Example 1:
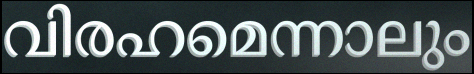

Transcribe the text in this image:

വിരഹമെന്നാലും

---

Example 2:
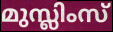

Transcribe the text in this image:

മുസ്ലിംസ്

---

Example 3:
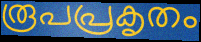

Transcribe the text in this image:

രൂപപ്രകൃതം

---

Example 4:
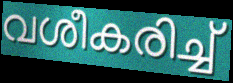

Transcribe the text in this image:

വശീകരിച്ച്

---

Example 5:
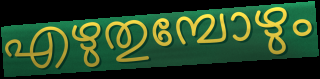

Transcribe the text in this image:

എഴുതുമ്പോഴും